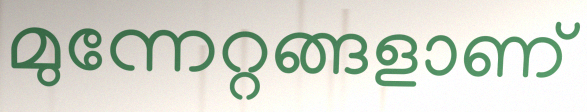
മുന്നേറ്റങ്ങളാണ്